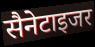
सैनेटाइजर